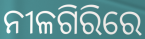
ନୀଳଗିରିରେ